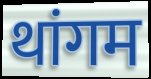
थांगम